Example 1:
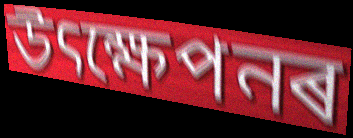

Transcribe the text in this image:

উৎক্ষেপনৰ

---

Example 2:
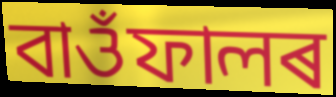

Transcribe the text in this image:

বাওঁফালৰ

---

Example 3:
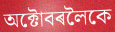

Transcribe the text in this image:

অক্টোবৰলৈকে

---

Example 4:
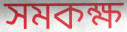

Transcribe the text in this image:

সমকক্ষ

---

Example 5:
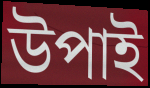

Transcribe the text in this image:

উপাই